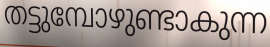
തട്ടുമ്പോഴുണ്ടാകുന്ന